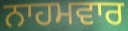
ਨਾਹਮਵਾਰ